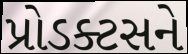
પ્રોડક્ટસને